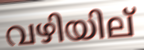
വഴിയില്